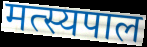
मत्स्यपाल